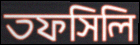
তফসিলি